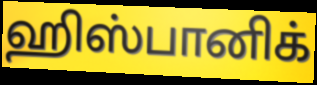
ஹிஸ்பானிக்